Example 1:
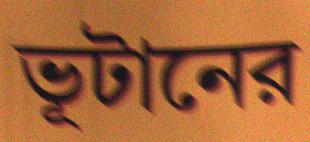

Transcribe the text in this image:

ভূটানের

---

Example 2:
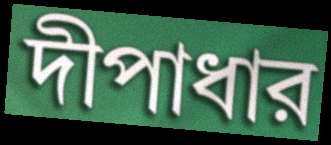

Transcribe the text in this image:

দীপাধার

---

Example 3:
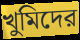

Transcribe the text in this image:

খুমিদের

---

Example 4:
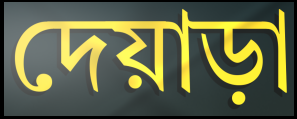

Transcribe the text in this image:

দেয়াড়া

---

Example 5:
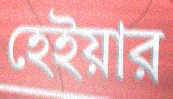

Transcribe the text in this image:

হেইয়ার